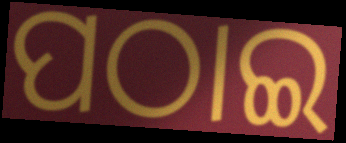
ପଠାଇ